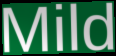
Mild